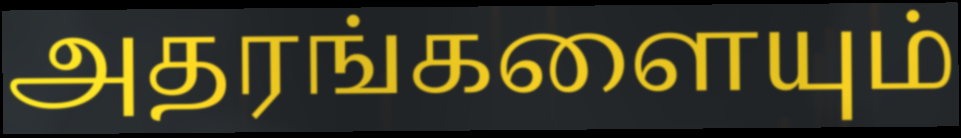
அதரங்களையும்